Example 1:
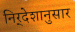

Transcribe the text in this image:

निर्देशानुसार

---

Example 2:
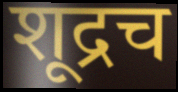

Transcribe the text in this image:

शूद्रच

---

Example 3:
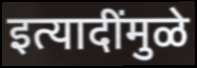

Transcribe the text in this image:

इत्यादींमुळे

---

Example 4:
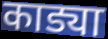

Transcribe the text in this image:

काड्या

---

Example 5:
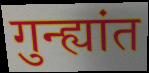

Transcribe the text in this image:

गुन्ह्यांत